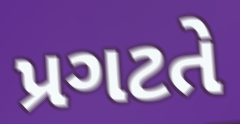
પ્રગટતે